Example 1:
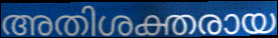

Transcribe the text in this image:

അതിശക്തരായ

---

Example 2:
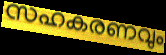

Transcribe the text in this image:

സഹകരണവും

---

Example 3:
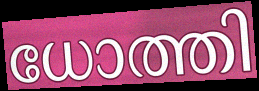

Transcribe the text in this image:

ധോത്തി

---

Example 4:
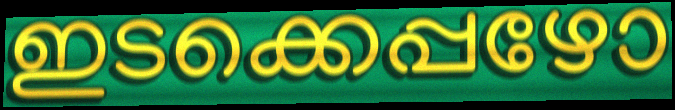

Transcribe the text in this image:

ഇടക്കെപ്പഴോ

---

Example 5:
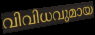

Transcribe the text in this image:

വിവിധവുമായ